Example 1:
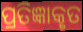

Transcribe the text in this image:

ପ୍ରତିଜ୍ଞାକୃତ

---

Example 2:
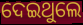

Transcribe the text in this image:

ଦେଇଥୁଲେ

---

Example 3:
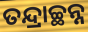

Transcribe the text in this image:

ତନ୍ଦ୍ରାଚ୍ଛନ୍ନ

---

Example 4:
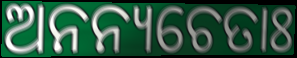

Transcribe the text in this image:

ଅନନ୍ୟଚେତାଃ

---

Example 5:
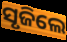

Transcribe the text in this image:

ସୃଜିଲେ